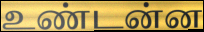
உண்டன்ன